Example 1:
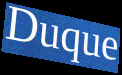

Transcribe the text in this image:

Duque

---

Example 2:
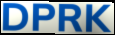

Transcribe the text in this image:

DPRK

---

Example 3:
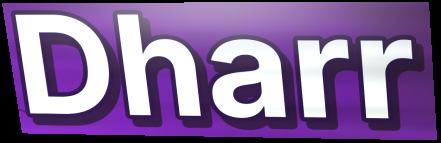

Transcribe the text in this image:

Dharr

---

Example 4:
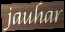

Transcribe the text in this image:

jauhar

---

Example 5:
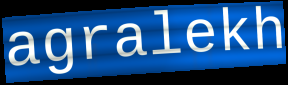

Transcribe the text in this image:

agralekh